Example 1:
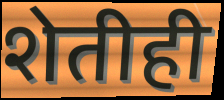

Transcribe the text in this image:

शेतीही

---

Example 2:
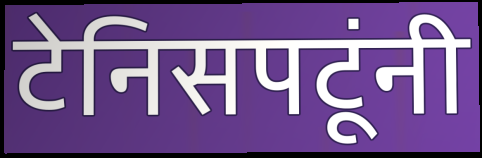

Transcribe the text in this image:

टेनिसपटूंनी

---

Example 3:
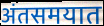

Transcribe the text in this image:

अंतसमयात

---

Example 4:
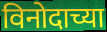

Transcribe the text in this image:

विनोदाच्या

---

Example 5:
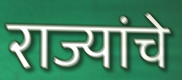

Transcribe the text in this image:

राज्यांचे